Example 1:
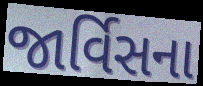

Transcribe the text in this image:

જાર્વિસના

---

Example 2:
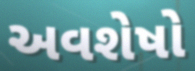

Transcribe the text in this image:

અવશેષો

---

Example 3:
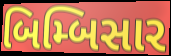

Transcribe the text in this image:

બિમ્બિસાર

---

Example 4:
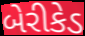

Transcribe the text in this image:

બેરીકેડ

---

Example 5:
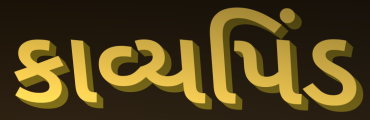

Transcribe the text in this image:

કાવ્યપિંડ